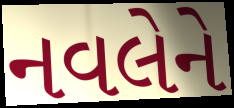
નવલેને